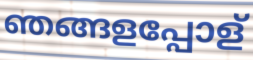
ഞങ്ങളപ്പോള്